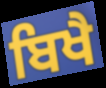
ਬਿਖੈ